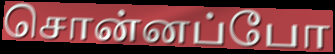
சொன்னப்போ